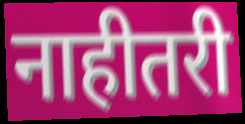
नाहीतरी